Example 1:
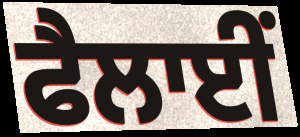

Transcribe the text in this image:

ਫੈਲਾਈਂ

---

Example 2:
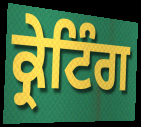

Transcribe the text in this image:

ਕ੍ਰੇਟਿੰਗ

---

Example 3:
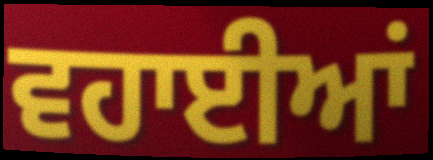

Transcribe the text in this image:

ਵਹਾਈਆਂ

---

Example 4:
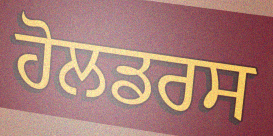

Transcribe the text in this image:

ਹੋਲਡਰਸ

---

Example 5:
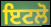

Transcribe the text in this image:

ਇਟਲੋ